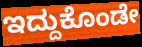
ಇದ್ದುಕೊಂಡೇ